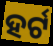
ହର୍ଟ